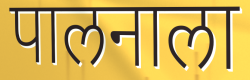
पालनाला